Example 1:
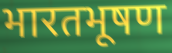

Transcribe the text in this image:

भारतभूषण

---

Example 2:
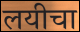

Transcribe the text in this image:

लयीचा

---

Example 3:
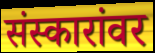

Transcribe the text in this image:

संस्कारांवर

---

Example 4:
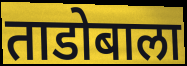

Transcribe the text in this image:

ताडोबाला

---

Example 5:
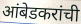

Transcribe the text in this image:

आंबेडकरांची